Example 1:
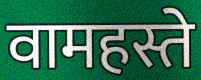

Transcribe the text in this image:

वामहस्ते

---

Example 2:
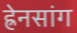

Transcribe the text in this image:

ह्रेनसांग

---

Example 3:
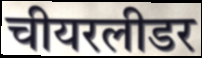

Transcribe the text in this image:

चीयरलीडर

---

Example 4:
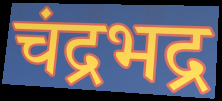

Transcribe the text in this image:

चंद्रभद्र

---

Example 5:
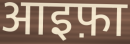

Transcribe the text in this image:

आइफ़ा